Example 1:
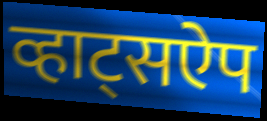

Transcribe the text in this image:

व्‍हाट्सऐप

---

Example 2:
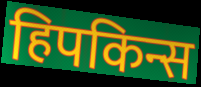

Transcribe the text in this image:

हिपकिन्स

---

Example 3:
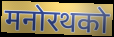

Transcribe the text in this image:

मनोरथको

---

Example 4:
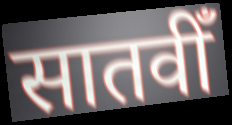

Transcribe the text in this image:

सातवीँ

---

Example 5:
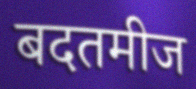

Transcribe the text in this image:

बदतमीज